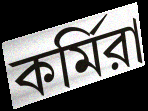
কর্মিরা